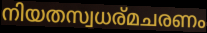
നിയതസ്വധര്മചരണം